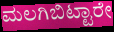
ಮಲಗಿಬಿಟ್ಟಾರೇ